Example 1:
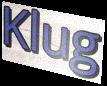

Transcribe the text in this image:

Klug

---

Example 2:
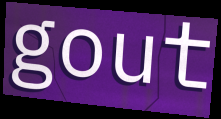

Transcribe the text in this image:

gout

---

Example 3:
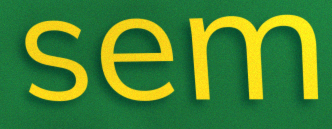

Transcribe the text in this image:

sem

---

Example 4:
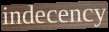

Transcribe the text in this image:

indecency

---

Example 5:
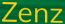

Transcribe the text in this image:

Zenz